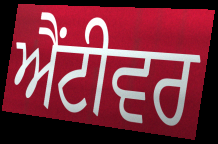
ਐਂਟੀਵਰ